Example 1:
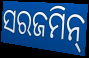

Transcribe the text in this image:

ସରଜମିନ୍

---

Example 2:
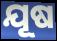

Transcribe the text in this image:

ଯୂଷ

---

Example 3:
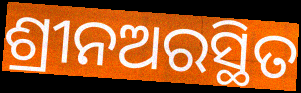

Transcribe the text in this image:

ଶ୍ରୀନଅରସ୍ଥିତ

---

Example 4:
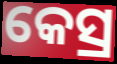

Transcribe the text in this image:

କେସ୍ର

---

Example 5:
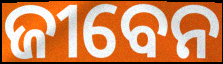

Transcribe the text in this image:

ଜୀବେନ